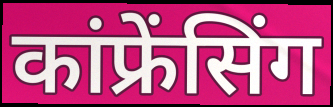
कांफ्रेंसिंग